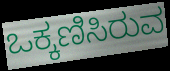
ಒಕ್ಕಣಿಸಿರುವ